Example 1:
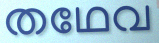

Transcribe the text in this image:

തഥേവ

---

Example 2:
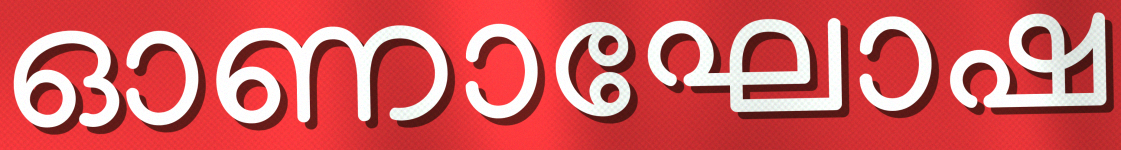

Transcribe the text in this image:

ഓണാഘോഷ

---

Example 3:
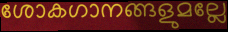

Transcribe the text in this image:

ശോകഗാനങ്ങളുമല്ലേ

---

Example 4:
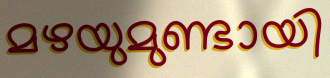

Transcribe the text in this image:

മഴയുമുണ്ടായി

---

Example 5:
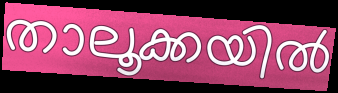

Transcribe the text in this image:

താലൂക്കയിൽ